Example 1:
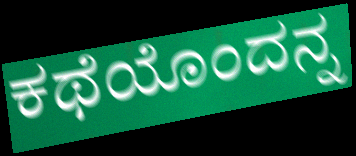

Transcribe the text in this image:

ಕಥೆಯೊಂದನ್ನ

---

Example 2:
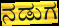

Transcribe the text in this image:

ನಡುಗ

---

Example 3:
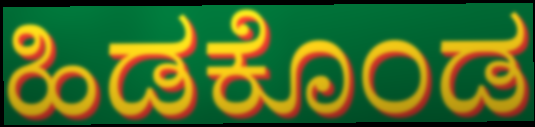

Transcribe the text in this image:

ಹಿಡಕೊಂಡ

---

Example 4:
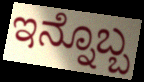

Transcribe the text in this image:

ಇನ್ನೊಬ್ಬ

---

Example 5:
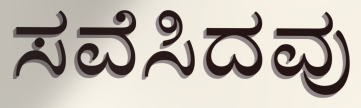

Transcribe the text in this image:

ಸವೆಸಿದವು